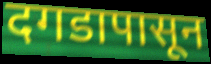
दगडापासून